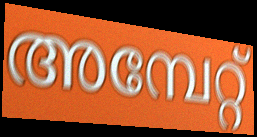
അമ്പേറ്റ്